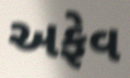
અફેવ